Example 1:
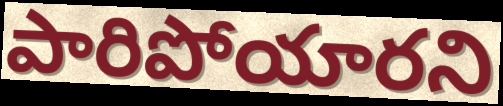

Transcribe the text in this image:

పారిపోయారని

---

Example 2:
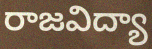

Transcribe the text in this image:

రాజవిద్యా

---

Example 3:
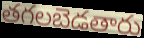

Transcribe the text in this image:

తగలబెడతారు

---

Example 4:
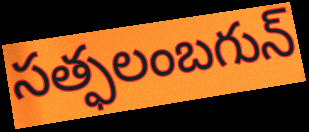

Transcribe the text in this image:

సత్ఫలంబగున్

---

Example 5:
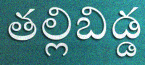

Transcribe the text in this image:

తల్లిబిడ్డ